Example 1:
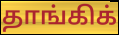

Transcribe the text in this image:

தாங்கிக்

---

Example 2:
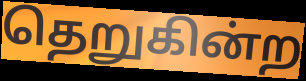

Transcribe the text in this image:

தெறுகின்ற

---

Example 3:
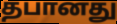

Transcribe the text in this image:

தபானது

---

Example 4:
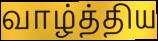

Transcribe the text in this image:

வாழ்த்திய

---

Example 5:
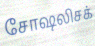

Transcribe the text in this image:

சோஷலிசக்